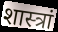
शास्त्रां